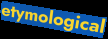
etymological